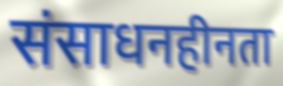
संसाधनहीनता